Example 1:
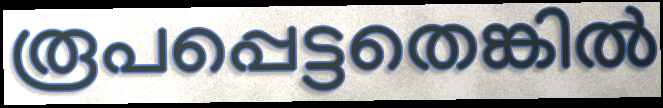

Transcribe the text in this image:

രൂപപ്പെട്ടതെങ്കിൽ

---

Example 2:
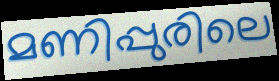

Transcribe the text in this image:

മണിപ്പുരിലെ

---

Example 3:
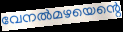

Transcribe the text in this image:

വേനൽമഴയെന്റെ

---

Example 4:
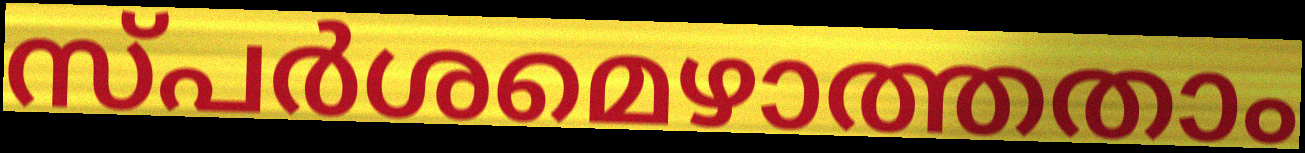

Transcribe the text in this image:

സ്പർശമെഴാത്തതാം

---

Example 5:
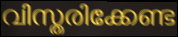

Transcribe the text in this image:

വിസ്തരിക്കേണ്ട